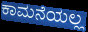
ಕಾಮನೆಯಲ್ಲ